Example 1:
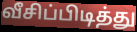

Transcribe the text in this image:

வீசிப்பிடித்து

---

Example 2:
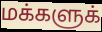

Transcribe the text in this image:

மக்களுக்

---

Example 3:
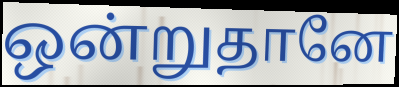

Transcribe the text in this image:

ஒன்றுதானே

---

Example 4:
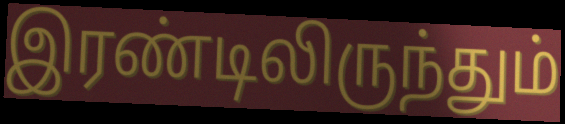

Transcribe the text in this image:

இரண்டிலிருந்தும்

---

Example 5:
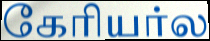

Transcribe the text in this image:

கேரியர்ல